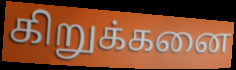
கிறுக்கனை